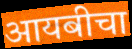
आयबीचा